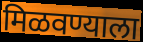
मिळवण्याला